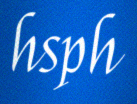
hsph